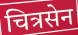
चित्रसेन